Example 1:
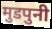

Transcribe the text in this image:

मुडपुनी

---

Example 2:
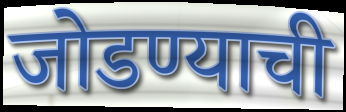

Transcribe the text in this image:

जोडण्याची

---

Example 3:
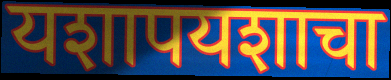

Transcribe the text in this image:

यशापयशाचा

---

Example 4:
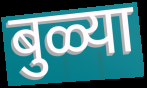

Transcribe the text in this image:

बुळ्या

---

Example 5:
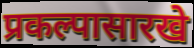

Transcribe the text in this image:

प्रकल्पासारखे